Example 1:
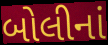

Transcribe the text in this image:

બોલીનાં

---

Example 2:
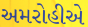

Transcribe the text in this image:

અમરોહીએ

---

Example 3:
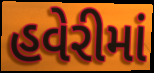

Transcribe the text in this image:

હવેરીમાં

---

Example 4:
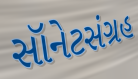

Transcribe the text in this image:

સૉનેટસંગ્રહ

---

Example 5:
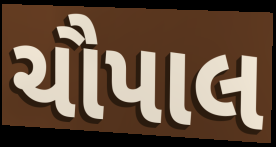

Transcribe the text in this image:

ચૌપાલ